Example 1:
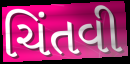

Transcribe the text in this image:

ચિંતવી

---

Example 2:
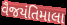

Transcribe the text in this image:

વૈજયંતિમાલા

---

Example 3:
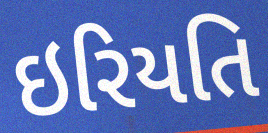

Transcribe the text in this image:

ઇરિયતિ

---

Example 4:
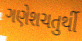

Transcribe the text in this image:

ગણેશચતુર્થી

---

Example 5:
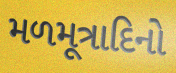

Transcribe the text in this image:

મળમૂત્રાદિનો